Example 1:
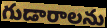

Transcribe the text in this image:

గుడారాలను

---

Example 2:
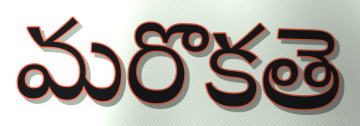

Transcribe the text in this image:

మరొకతె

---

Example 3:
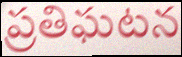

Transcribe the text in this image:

ప్రతిఘటన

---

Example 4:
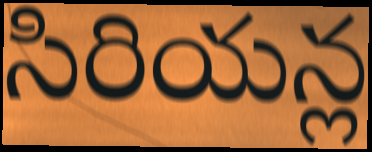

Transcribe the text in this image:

సిరియన్ల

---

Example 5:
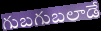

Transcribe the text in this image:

గుబగుబలాడే